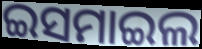
ଇସମାଇଲ